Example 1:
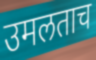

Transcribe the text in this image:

उमलताच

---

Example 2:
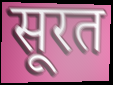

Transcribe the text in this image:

सूरत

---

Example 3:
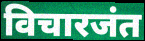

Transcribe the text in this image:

विचारजंत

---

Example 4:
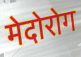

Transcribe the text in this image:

मेदोरोग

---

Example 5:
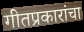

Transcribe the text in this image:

गीतप्रकारांचा